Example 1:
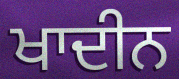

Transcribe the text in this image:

ਖਾਦੀਨ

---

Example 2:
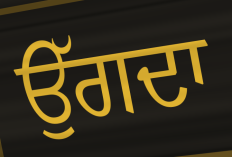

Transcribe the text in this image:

ਉੱਗਦਾ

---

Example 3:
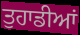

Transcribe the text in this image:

ਤੁਹਾਡੀਆਂ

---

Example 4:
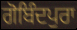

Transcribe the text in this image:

ਗੋਬਿੰਦਪੁਰਾ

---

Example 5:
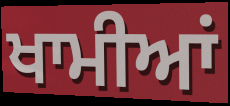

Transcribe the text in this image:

ਖਾਮੀਆਂ